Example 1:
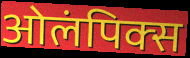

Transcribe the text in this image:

ओलंपिक्‍स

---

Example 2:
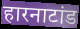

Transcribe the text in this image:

हारनाटांड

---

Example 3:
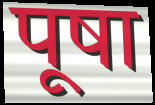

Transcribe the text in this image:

पूषा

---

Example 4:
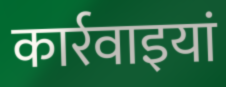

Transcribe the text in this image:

कार्रवाइयां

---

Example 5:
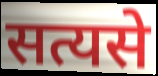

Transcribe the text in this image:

सत्यसे